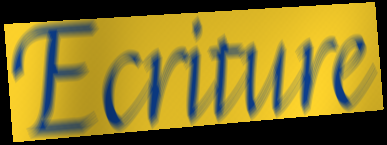
Ecriture